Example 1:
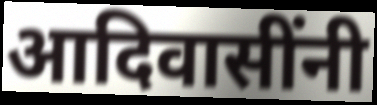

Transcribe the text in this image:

आदिवासींनी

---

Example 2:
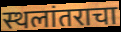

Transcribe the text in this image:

स्थलांतराचा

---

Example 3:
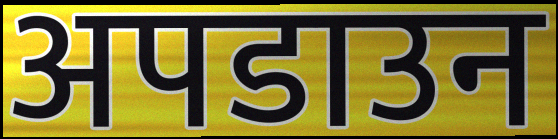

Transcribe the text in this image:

अपडाउन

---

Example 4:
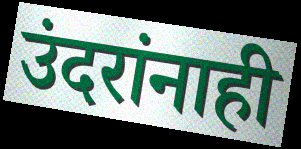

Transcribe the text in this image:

उंदरांनाही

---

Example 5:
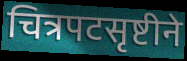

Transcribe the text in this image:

चित्रपटसृष्टीने